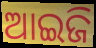
ଆଇଜି